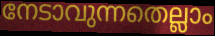
നേടാവുന്നതെല്ലാം